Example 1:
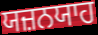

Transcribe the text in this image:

ਯਜ਼ਨਯਾਹ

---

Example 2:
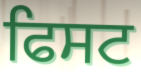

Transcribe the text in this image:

ਫਿਸਟ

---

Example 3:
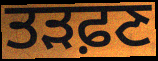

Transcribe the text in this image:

ਤੜਫ਼ਣ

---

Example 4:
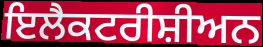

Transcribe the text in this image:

ਇਲੈਕਟਰੀਸ਼ੀਅਨ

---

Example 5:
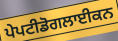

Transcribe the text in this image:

ਪੇਪਟੀਡੋਗਲਾਈਕਨ